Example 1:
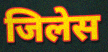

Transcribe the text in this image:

जिलेस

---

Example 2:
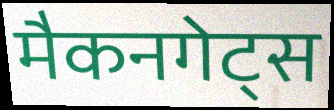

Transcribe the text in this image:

मैकनगेट्स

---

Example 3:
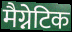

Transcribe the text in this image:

मैग्नेटिक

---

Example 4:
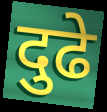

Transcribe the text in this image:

दुढे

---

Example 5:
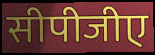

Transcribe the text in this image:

सीपीजीए